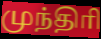
முந்திரி